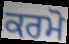
ਕਰਮੋ